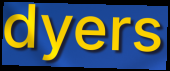
dyers